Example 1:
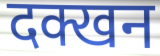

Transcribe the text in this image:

दक्खन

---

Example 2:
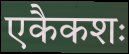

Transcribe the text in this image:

एकैकशः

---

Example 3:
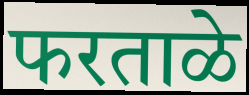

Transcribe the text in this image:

फरताळे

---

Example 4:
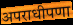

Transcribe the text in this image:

अपराधीपणा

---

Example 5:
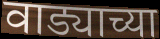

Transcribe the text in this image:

वाड्याच्या